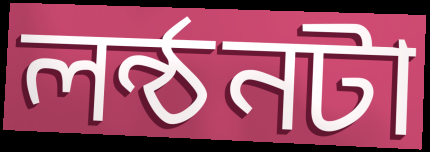
লন্ঠনটা